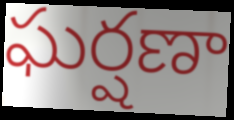
ఘర్షణా